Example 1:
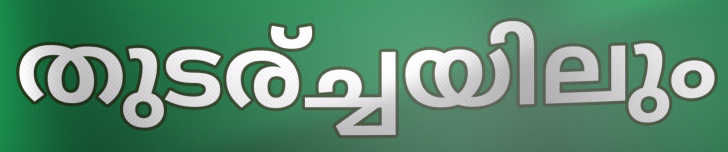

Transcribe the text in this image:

തുടര്ച്ചയിലും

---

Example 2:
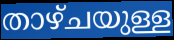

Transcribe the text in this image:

താഴ്ചയുള്ള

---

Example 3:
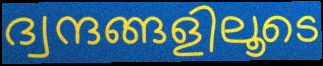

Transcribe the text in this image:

ദ്വന്ദങ്ങളിലൂടെ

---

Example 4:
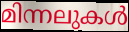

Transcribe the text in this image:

മിന്നലുകൾ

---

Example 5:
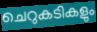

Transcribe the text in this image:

ചെറുകടികളും